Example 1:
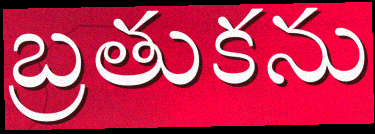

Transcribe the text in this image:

బ్రతుకను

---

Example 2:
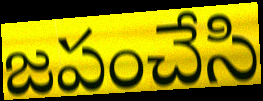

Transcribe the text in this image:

జపంచేసి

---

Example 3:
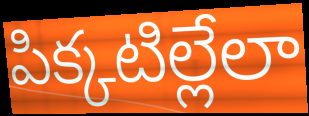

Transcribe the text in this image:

పిక్కటిల్లేలా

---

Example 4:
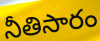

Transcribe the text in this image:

నీతిసారం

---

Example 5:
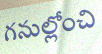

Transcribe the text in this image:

గనుల్లోంచి